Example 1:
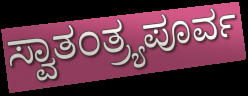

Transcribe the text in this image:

ಸ್ವಾತಂತ್ರ್ಯಪೂರ್ವ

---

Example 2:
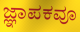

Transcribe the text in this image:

ಜ್ಞಾಪಕವೂ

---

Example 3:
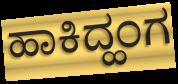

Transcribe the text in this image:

ಹಾಕಿದ್ಹಂಗ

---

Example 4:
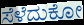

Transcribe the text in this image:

ಸೆಳೆದುಕೋ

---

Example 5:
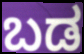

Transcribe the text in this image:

ಬಡ